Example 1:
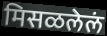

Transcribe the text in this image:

मिसळलेलं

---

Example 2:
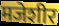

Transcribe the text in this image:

मजेशीर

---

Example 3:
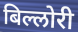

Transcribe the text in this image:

बिल्लोरी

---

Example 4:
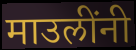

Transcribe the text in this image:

माउलींनी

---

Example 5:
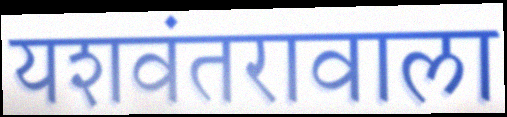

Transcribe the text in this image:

यशवंतरावाला